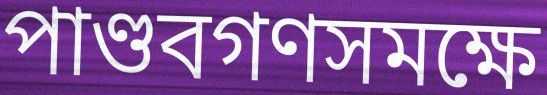
পাণ্ডবগণসমক্ষে